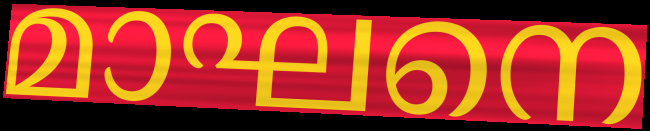
മാഘനെ